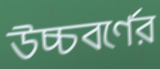
উচ্চবর্ণের